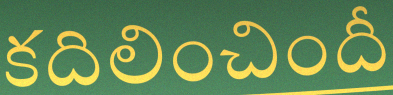
కదిలించిందీ